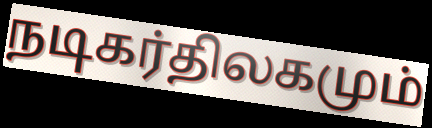
நடிகர்திலகமும்